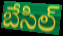
బేసిల్